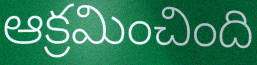
ఆక్రమించింది